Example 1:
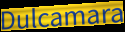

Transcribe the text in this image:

Dulcamara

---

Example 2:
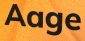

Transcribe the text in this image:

Aage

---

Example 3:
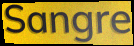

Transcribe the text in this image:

Sangre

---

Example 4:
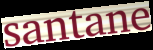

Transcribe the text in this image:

santane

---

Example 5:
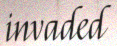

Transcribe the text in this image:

invaded